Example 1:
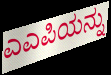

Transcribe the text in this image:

ಎಎಪಿಯನ್ನು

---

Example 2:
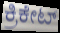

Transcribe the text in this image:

ಕ್ರಿಕೇಟ್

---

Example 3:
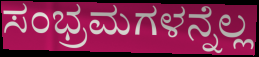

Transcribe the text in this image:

ಸಂಭ್ರಮಗಳನ್ನೆಲ್ಲ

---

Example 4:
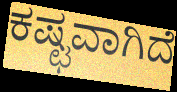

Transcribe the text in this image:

ಕಷ್ಟವಾಗಿದೆ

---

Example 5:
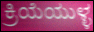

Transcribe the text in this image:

ಕ್ರಿಯೆಯುಳ್ಳ